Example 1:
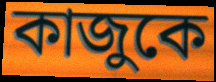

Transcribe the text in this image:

কাজুকে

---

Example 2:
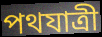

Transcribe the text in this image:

পথযাত্রী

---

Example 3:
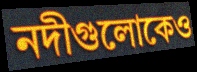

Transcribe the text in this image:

নদীগুলোকেও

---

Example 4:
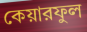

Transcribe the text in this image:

কেয়ারফুল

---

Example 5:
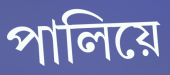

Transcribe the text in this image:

পালিয়ে